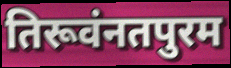
तिरूवंनतपुरम